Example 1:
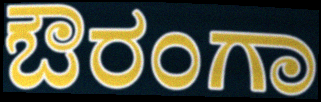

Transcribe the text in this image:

ಔರಂಗಾ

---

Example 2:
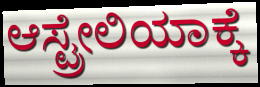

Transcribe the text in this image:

ಆಸ್ಟ್ರೇಲಿಯಾಕ್ಕೆ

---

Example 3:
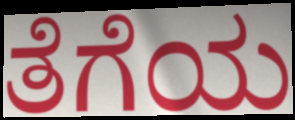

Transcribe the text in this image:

ತೆಗೆಯ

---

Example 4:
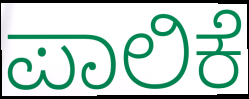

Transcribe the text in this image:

ಪಾಲಿಕೆ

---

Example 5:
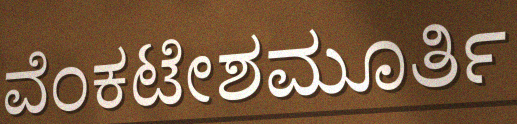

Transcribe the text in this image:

ವೆಂಕಟೇಶಮೂರ್ತಿ